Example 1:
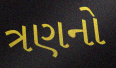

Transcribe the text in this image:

ત્રણનો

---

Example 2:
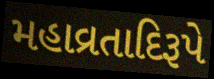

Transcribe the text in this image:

મહાવ્રતાદિરૂપે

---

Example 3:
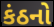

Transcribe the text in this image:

કંઠનો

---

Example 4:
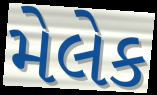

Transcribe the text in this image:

મેલેક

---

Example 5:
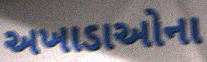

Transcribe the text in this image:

અખાડાઓના